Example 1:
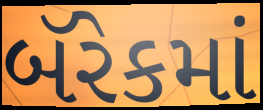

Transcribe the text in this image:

બૅરેકમાં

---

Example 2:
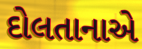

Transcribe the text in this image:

દોલતાનાએ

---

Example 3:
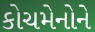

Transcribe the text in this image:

કોચમેનોને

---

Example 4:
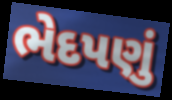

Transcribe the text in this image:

ભેદપણું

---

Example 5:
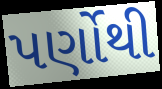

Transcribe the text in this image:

પર્ણોથી